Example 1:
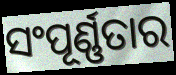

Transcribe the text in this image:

ସଂପୂର୍ଣ୍ଣତାର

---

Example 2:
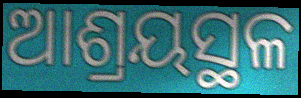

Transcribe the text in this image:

ଆଶ୍ରୟସ୍ଥଳ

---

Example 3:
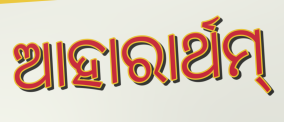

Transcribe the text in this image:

ଆହାରାର୍ଥମ୍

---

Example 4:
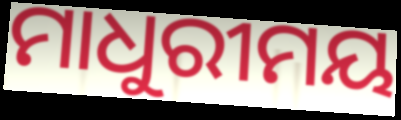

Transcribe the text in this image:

ମାଧୁରୀମୟ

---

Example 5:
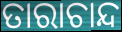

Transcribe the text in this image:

ତାରାଚାନ୍ଦ